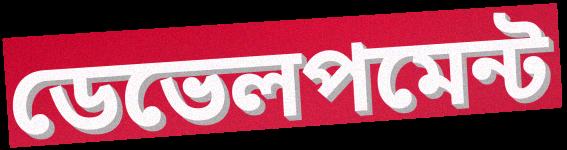
ডেভেলপমেন্ট